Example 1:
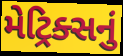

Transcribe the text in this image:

મેટ્રિક્સનું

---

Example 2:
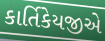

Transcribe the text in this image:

કાર્તિકેયજીએ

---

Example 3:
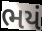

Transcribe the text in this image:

ભયં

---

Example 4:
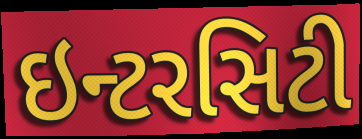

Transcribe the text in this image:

ઇન્ટરસિટી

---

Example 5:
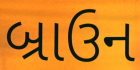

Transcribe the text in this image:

બ્રાઉન